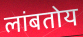
लांबतोय